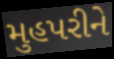
મુહપરીને